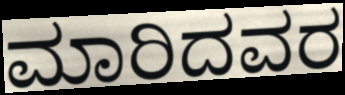
ಮಾರಿದವರ